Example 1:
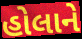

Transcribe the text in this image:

હોલાને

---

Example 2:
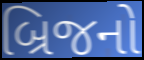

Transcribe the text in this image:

બ્રિજનો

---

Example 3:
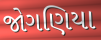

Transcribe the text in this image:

જોગણિયા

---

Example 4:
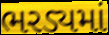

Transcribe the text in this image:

ભરડ્યમાં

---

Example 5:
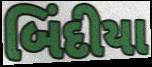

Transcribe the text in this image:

બિંદીયા